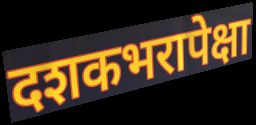
दशकभरापेक्षा